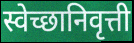
स्वेच्छानिवृत्ती